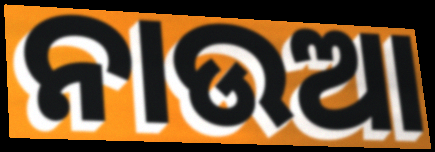
ନାଉଆ